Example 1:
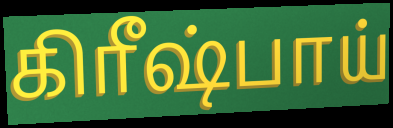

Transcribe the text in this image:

கிரீஷ்பாய்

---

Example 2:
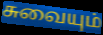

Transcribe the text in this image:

சுவையும்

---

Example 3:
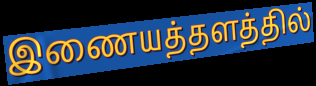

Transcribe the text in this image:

இணையத்தளத்தில்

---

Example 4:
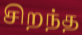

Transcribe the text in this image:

சிறந்த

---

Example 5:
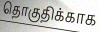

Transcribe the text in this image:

தொகுதிக்காக